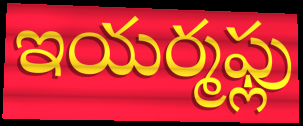
ఇయర్మఫ్లు